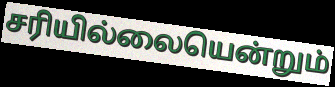
சரியில்லையென்றும்